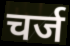
चर्ज